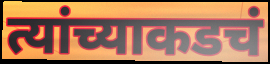
त्यांच्याकडचं